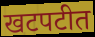
खटपटीत